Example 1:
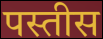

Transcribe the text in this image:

पस्तीस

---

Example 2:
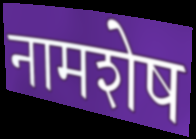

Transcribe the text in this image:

नामशेष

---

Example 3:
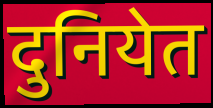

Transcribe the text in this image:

दुनियेत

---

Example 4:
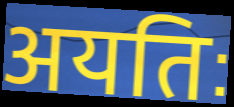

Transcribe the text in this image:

अयतिः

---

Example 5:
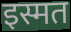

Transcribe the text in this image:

इस्मत